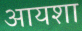
आयशा